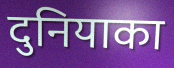
दुनियाका